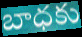
బాధకు